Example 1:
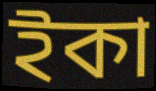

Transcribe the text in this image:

ইকা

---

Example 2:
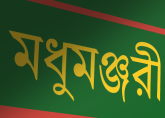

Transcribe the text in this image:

মধুমঞ্জরী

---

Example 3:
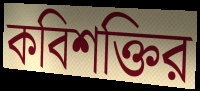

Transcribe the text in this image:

কবিশক্তির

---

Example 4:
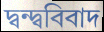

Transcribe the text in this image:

দ্বন্দ্ববিবাদ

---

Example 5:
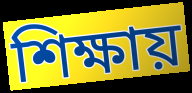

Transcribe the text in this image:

শিক্ষায়